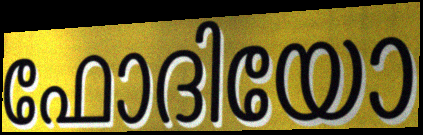
ഫോദിയോ